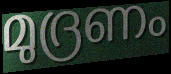
മുദ്രണം